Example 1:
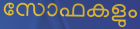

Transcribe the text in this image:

സോഫകളും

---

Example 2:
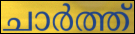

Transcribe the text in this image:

ചാർത്ത്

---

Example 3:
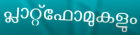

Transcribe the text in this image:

പ്ലാറ്റ്ഫോമുകളും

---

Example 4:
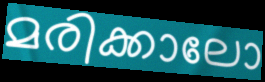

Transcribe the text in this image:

മരിക്കാലോ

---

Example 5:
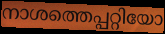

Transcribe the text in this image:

നാശത്തെപ്പറ്റിയോ